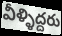
వీళ్ళిద్దరు